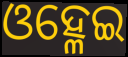
ଓହ୍ଳେଇ